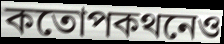
কতোপকথনেও